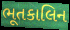
ભૂતકાલિન